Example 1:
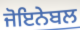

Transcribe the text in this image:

ਜੋਇਨੇਬਲ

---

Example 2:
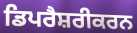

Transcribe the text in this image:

ਡਿਪਰੈਸ਼ਰੀਕਰਨ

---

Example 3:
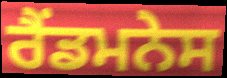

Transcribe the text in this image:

ਰੈਂਡਮਨੇਸ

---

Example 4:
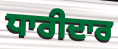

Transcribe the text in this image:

ਧਾਰੀਦਾਰ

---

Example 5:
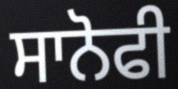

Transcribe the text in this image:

ਸਾਨੋਫੀ